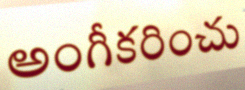
అంగీకరించు